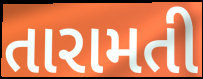
તારામતી